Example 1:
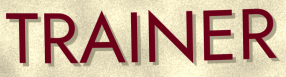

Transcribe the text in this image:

TRAINER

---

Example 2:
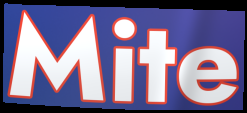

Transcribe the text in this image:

Mite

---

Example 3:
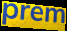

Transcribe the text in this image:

prem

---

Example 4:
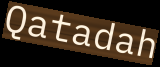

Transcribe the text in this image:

Qatadah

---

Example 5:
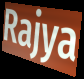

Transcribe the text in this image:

Rajya